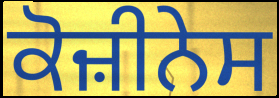
ਕੋਜ਼ੀਨੇਸ